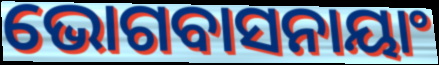
ଭୋଗବାସନାୟାଂ